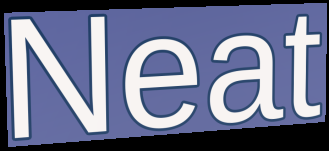
Neat